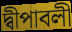
দ্বীপাবলী